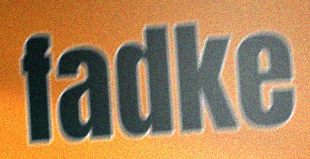
fadke